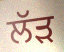
ਲੱੜ